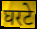
घरटे